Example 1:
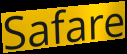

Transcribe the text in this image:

Safare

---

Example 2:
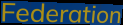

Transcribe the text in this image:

Federation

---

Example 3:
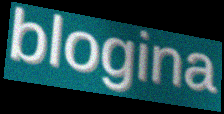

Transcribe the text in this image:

blogina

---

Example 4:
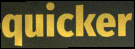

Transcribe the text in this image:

quicker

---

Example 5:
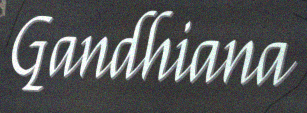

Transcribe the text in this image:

Gandhiana